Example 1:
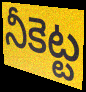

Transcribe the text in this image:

నీకెట్ట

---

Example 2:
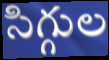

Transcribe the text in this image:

సిగ్గుల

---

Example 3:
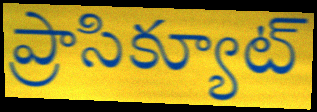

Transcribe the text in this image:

ప్రాసిక్యూట్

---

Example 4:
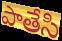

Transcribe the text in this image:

పాతేసి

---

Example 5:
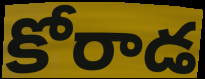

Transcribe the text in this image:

కోరాడ